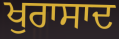
ਖੁਰਾਸਾਦ